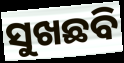
ସୁଖଛବି